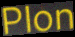
Plon